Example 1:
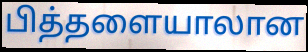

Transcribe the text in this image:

பித்தளையாலான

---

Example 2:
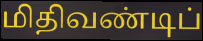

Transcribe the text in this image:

மிதிவண்டிப்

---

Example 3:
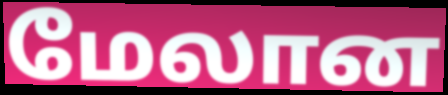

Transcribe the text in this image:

மேலான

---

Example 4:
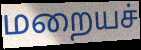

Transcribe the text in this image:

மறையச்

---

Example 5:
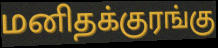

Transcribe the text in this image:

மனிதக்குரங்கு